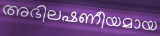
അഭിലഷണീയമായ